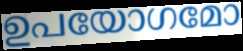
ഉപയോഗമോ